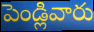
పెండ్లివారు